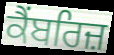
ਕੈਂਬਰਿਜ਼